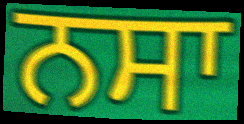
ਨਸਾ